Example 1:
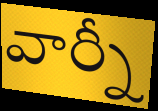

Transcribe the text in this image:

వార్నీ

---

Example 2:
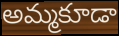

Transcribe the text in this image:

అమ్మకూడా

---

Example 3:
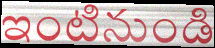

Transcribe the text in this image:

ఇంటినుండి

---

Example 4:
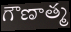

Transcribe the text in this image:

గౌణాత్మ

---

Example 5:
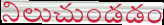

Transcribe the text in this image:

నిలుచుండడం